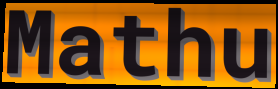
Mathu